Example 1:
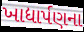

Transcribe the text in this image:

ખાદ્યાર્પણના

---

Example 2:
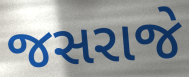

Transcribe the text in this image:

જસરાજે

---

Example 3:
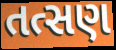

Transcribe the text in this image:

તત્સણ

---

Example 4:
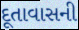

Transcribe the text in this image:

દૂતાવાસની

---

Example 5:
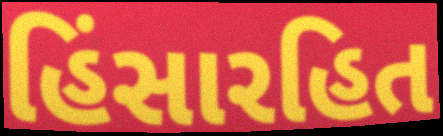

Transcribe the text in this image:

હિંસારહિત